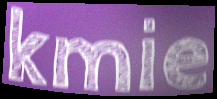
kmie